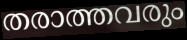
തരാത്തവരും